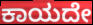
ಕಾಯದೇ